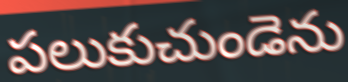
పలుకుచుండెను